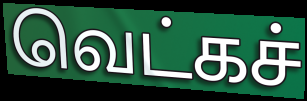
வெட்கச்